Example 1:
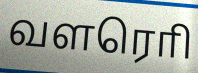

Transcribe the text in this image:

வளரெரி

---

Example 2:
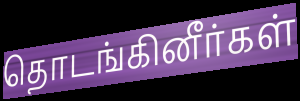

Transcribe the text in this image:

தொடங்கினீர்கள்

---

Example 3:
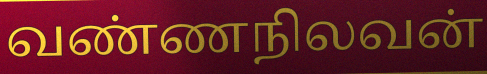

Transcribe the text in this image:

வண்ணநிலவன்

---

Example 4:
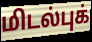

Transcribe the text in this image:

மிடல்புக்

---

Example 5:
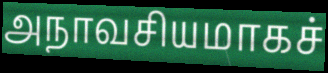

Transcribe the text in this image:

அநாவசியமாகச்